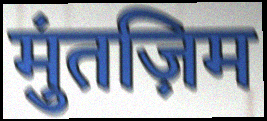
मुंतज़िम